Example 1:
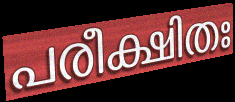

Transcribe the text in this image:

പരീക്ഷിതഃ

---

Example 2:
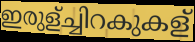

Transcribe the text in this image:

ഇരുള്ച്ചിറകുകള്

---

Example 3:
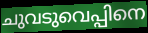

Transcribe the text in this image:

ചുവടുവെപ്പിനെ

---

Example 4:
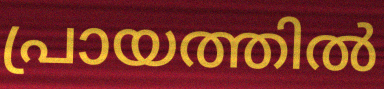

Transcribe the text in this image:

പ്രായത്തിൽ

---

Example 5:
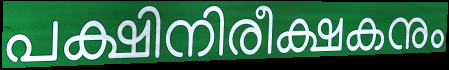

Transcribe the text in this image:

പക്ഷിനിരീക്ഷകനും